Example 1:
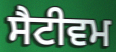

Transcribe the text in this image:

ਸੈਟੀਵਮ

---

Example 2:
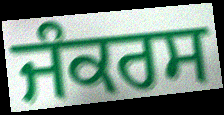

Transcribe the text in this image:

ਜੰਕਰਸ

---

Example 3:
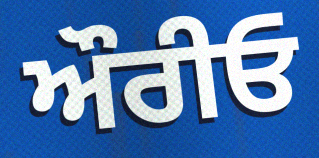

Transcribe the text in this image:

ਔਰੀਓ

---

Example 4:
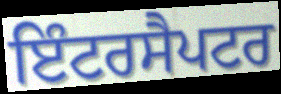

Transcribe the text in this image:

ਇੰਟਰਸੈਪਟਰ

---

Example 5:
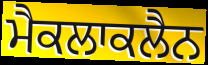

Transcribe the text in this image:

ਮੈਕਲਾਕਲੈਨ